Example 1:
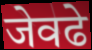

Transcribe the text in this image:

जेवढे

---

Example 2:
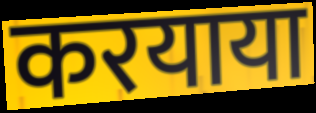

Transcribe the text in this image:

करयाया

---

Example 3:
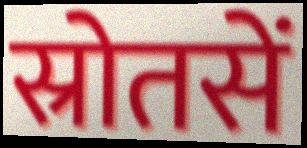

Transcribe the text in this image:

स्रोतसें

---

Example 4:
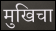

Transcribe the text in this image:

मुखिचा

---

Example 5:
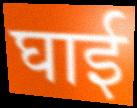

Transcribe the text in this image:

घाई